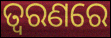
ତ୍ଵରଣରେ